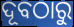
ଦୂବଠାରୁ